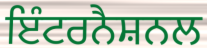
ਇੰਟਰਨੈਸ਼ਨਲ